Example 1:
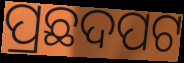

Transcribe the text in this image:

ପ୍ରଛଦପଟ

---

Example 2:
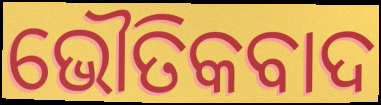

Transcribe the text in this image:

ଭୌତିକବାଦ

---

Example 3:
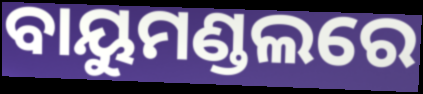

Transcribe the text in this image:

ବାୟୁମଣ୍ଡଲରେ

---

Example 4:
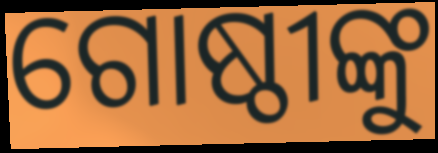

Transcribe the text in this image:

ଗୋଷ୍ଠୀଙ୍କୁ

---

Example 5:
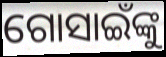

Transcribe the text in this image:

ଗୋସାଇଁଙ୍କୁ